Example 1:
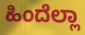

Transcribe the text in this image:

ಹಿಂದೆಲ್ಲಾ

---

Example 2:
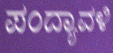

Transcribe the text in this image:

ಪಂದ್ಯಾವಳಿ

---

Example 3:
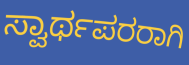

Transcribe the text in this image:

ಸ್ವಾರ್ಥಪರರಾಗಿ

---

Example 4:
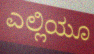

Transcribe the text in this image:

ಎಲ್ಲಿಯೂ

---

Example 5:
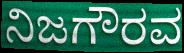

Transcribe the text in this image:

ನಿಜಗೌರವ